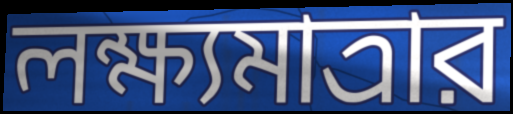
লক্ষ্যমাত্রার